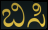
ಬಿಸಿ